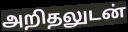
அறிதலுடன்